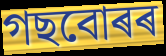
গছবোৰৰ